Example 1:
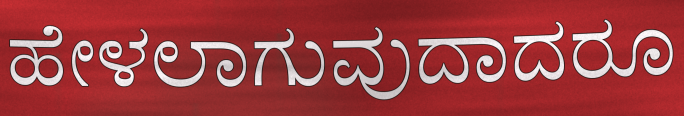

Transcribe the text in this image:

ಹೇಳಲಾಗುವುದಾದರೂ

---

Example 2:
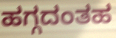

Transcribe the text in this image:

ಹಗ್ಗದಂತಹ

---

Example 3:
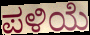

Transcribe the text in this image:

ಪಳಿಯೆ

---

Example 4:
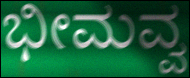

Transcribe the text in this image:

ಭೀಮವ್ವ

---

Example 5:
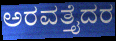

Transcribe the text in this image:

ಅರವತ್ತೈದರ